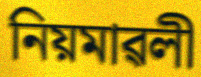
নিয়মাৱলী